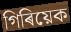
গিৰিয়েক